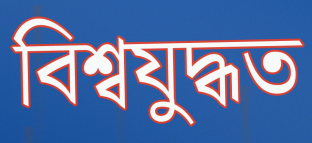
বিশ্বযুদ্ধত